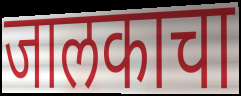
जालकाचा